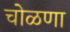
चोळणा